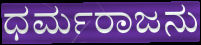
ಧರ್ಮರಾಜನು